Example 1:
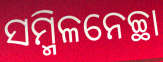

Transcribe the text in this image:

ସମ୍ମିଳନେଚ୍ଛା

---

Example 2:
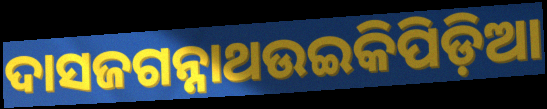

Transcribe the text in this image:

ଦାସଜଗନ୍ନାଥଉଇକିପିଡ଼ିଆ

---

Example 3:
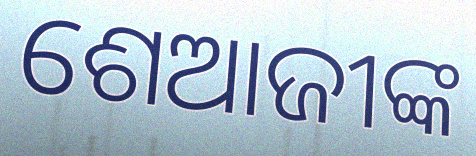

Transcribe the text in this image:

ଶେଆଜୀଙ୍କ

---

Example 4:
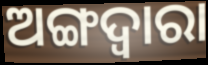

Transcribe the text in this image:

ଅଙ୍ଗଦ୍ଵାରା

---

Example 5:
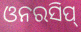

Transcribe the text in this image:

ଓନରସିପ୍